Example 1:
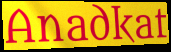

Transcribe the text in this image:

Anadkat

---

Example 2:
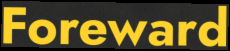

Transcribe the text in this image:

Foreward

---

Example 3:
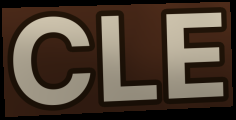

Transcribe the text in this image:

CLE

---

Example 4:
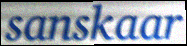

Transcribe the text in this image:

sanskaar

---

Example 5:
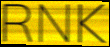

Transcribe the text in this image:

RNK